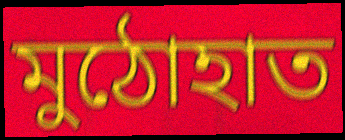
মুঠোহাত